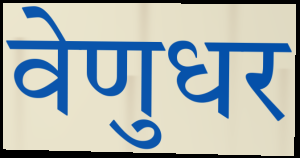
वेणुधर